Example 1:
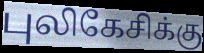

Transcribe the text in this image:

புலிகேசிக்கு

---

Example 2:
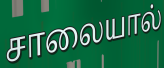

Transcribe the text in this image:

சாலையால்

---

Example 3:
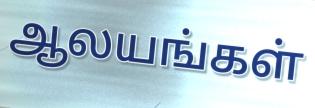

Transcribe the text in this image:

ஆலயங்கள்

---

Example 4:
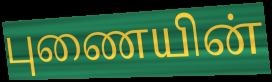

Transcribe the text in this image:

புணையின்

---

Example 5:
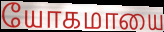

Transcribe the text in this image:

யோகமாயை